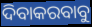
ଦିବାକରବାବୁ